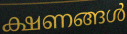
ക്ഷണങ്ങൾ